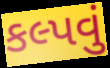
કલ્પવું